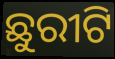
ଛୁରୀଟି